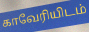
காவேரியிடம்